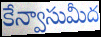
కేన్వాసుమీద